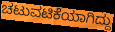
ಚಟುವಟಿಕೆಯಾಗಿದ್ದು